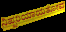
ನಿಪ್ಪರಿಯಾಯತೋವ